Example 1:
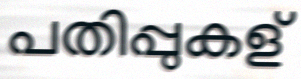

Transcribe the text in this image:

പതിപ്പുകള്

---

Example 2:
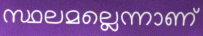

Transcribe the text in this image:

സ്ഥലമല്ലെന്നാണ്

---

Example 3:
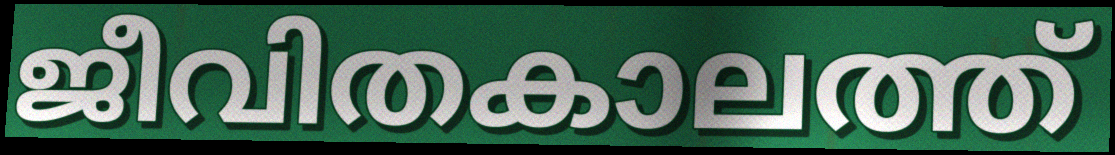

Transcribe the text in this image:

ജീവിതകാലത്ത്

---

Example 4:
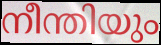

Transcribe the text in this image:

നീന്തിയും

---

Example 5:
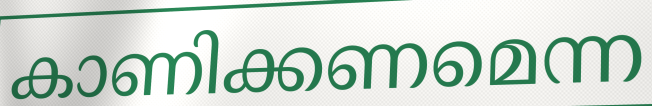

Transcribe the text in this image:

കാണിക്കണമെന്ന